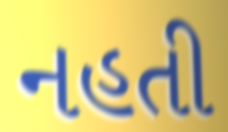
નહતી